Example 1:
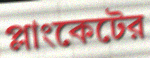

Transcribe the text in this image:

প্লাংকেটের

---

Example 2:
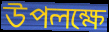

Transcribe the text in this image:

উপলক্ষে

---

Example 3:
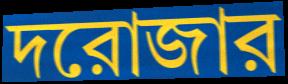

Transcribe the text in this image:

দরোজার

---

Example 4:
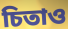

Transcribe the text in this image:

চিতাও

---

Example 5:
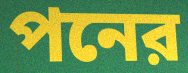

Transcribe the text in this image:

পনের